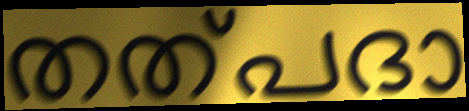
തത്പദാ